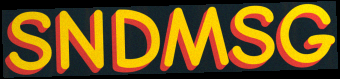
SNDMSG